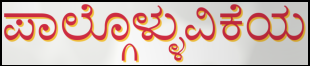
ಪಾಲ್ಗೊಳ್ಳುವಿಕೆಯ